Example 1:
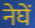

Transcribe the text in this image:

नेघें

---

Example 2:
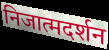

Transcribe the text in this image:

निजात्मदर्शन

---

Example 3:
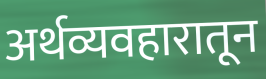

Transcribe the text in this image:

अर्थव्यवहारातून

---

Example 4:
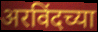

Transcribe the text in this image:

अरविंदच्या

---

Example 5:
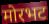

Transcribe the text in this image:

मोरभट